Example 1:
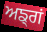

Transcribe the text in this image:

ਅਙ੍ਗਂ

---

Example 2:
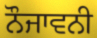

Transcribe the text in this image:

ਨੌਜਾਵਨੀ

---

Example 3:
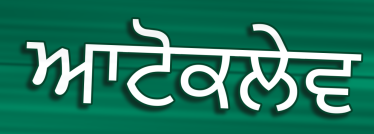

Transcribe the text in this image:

ਆਟੋਕਲੇਵ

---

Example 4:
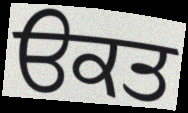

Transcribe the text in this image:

ੳਕਤ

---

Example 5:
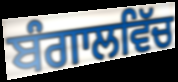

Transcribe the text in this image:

ਬੰਗਾਲਵਿੱਚ